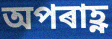
অপৰাহ্ণ